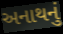
અનાથનું